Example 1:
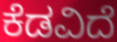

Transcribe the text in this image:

ಕೆಡವಿದೆ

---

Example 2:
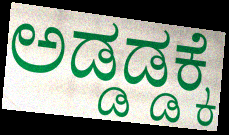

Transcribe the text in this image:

ಅಡ್ಡಡ್ಡಕ್ಕೆ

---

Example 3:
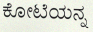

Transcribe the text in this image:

ಕೋಟೆಯನ್ನ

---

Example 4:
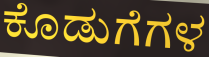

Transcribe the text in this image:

ಕೊಡುಗೆಗಳ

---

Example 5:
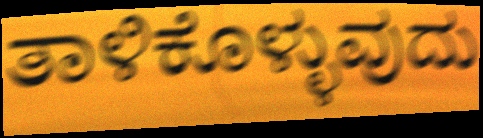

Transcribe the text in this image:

ತಾಳಿಕೊಳ್ಳುವುದು